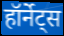
हॉर्नेट्स